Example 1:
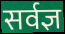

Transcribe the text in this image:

सर्वज्ञ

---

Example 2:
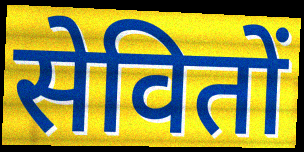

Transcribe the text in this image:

सेवितों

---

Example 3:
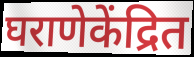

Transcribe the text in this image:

घराणेकेंद्रित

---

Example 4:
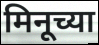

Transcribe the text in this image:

मिनूच्या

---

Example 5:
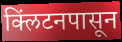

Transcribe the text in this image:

क्लिंटनपासून